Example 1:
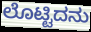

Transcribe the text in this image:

ಲೊಟ್ಟಿದನು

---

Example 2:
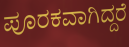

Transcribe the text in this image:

ಪೂರಕವಾಗಿದ್ದರೆ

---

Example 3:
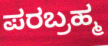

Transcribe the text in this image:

ಪರಬ್ರಹ್ಮ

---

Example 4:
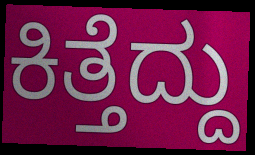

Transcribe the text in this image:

ಕಿತ್ತೆದ್ದು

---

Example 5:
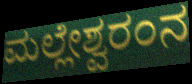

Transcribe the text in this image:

ಮಲ್ಲೇಶ್ವರಂನ